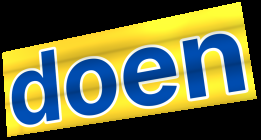
doen